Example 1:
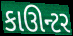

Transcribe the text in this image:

કાઊન્ટર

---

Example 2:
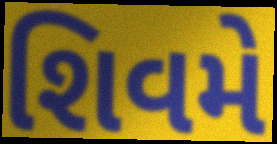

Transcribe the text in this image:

શિવમે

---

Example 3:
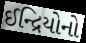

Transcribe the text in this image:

ઈન્દ્રિયોનો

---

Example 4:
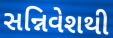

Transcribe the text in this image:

સન્નિવેશથી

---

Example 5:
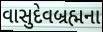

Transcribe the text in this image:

વાસુદેવબ્રહ્મના